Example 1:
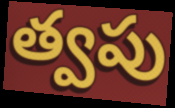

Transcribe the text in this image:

త్వపు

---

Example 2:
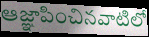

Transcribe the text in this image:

ఆజ్ఞాపించినవాటిలో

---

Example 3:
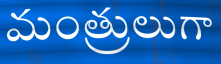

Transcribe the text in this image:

మంత్రులుగా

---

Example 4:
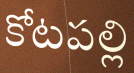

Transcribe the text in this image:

కోటపల్లి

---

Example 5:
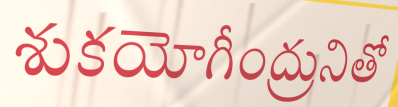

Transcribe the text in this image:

శుకయోగీంద్రునితో